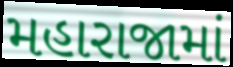
મહારાજામાં